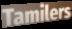
Tamilers